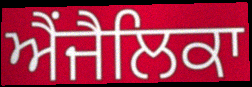
ਐਂਜੈਲਿਕਾ